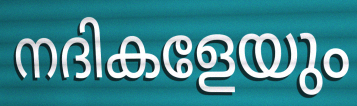
നദികളേയും